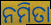
ନମିତା